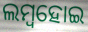
ଲମ୍ୱହୋଇ